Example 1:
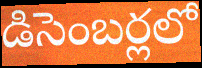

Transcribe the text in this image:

డిసెంబర్లలో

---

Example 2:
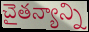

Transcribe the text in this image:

చైతన్యాన్ని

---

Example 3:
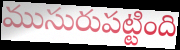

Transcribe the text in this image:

ముసురుపట్టింది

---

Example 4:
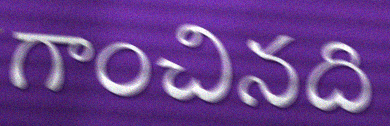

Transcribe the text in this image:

గాంచినది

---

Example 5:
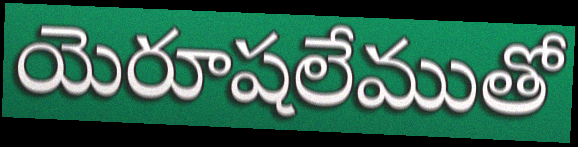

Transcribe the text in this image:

యెరూషలేముతో